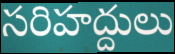
సరిహద్దులు